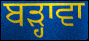
ਬੜ੍ਹਾਵਾ